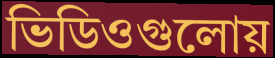
ভিডিওগুলোয়